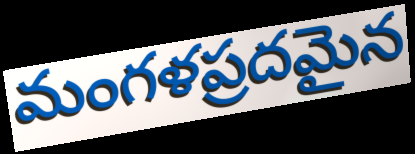
మంగళప్రదమైన